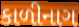
કાળીનાગ